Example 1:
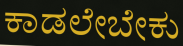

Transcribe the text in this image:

ಕಾಡಲೇಬೇಕು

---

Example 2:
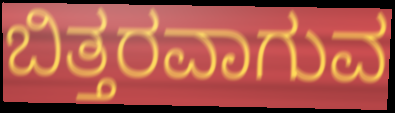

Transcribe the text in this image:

ಬಿತ್ತರವಾಗುವ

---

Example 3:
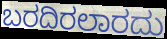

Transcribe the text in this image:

ಬರದಿರಲಾರದು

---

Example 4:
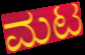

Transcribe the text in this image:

ಮಟ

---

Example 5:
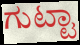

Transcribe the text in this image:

ಗುಟ್ಟಾ